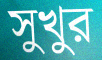
সুখুর